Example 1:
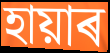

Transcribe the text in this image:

হায়াৰ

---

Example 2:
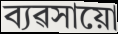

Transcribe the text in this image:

ব্যৱসায়ো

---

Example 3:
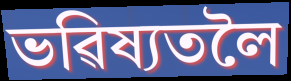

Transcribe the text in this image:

ভৱিষ্যতলৈ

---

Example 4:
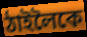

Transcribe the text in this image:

ঠাইলৈকে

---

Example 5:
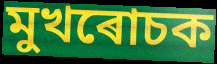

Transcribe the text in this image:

মুখৰোচক